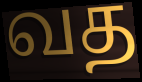
வத